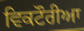
ਵਿਕਟੌਰੀਆ